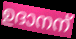
ഉദാനന്